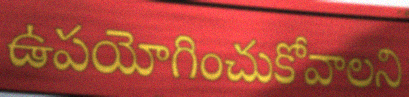
ఉపయోగించుకోవాలని